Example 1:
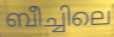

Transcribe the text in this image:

ബീച്ചിലെ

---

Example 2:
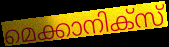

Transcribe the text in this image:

മെക്കാനിക്സ്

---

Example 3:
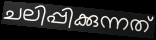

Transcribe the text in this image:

ചലിപ്പിക്കുന്നത്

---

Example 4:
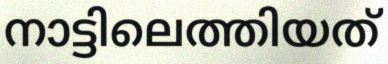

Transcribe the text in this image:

നാട്ടിലെത്തിയത്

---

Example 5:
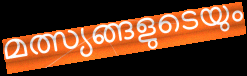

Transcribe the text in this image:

മത്സ്യങ്ങളുടെയും